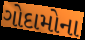
ગોદામોના